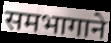
समभागाने